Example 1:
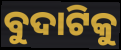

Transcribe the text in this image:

ବୁଦାଟିକୁ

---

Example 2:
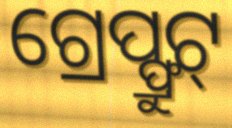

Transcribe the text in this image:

ଗ୍ରେପ୍ଫ୍ରୁଟ୍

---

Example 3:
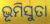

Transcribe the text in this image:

ଭୂମିସୁତା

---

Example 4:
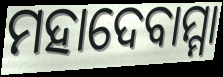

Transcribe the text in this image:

ମହାଦେବାମ୍ମା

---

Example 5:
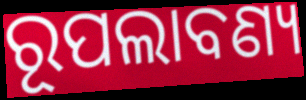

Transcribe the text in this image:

ରୂପଲାବଣ୍ୟ